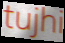
tujhi